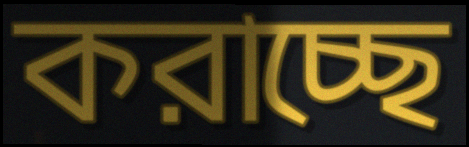
করাচ্ছে